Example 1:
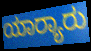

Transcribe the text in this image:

ಯಾರ್‍ಯಾರು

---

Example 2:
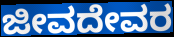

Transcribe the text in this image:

ಜೀವದೇವರ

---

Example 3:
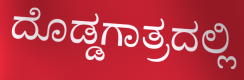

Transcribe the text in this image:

ದೊಡ್ಡಗಾತ್ರದಲ್ಲಿ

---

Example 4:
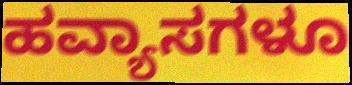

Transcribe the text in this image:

ಹವ್ಯಾಸಗಳೂ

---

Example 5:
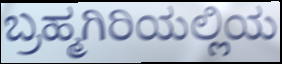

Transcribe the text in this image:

ಬ್ರಹ್ಮಗಿರಿಯಲ್ಲಿಯ